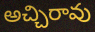
అచ్చిరావు